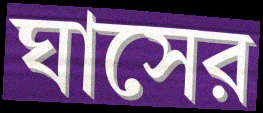
ঘাসের